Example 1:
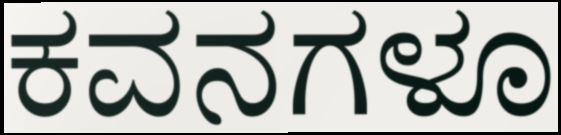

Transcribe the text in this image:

ಕವನಗಳೂ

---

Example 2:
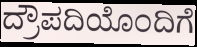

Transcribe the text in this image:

ದ್ರೌಪದಿಯೊಂದಿಗೆ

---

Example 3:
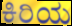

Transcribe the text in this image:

ಕಿರಿಯ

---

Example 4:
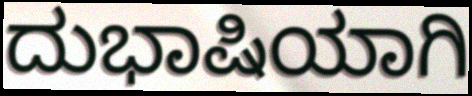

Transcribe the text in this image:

ದುಭಾಷಿಯಾಗಿ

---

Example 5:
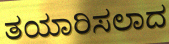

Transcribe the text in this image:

ತಯಾರಿಸಲಾದ